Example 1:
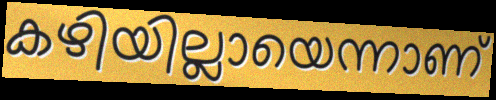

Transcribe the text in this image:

കഴിയില്ലായെന്നാണ്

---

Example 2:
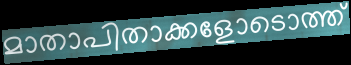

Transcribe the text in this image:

മാതാപിതാക്കളോടൊത്ത്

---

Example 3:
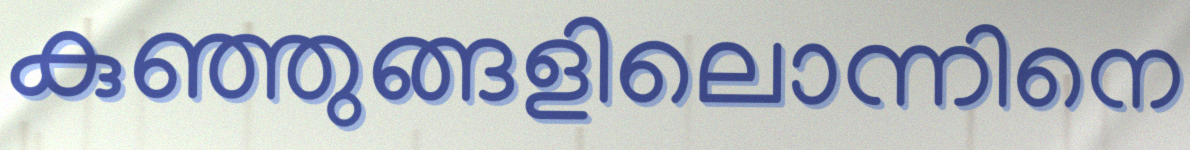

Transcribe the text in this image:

കുഞ്ഞുങ്ങളിലൊന്നിനെ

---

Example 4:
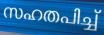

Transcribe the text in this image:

സഹതപിച്ച്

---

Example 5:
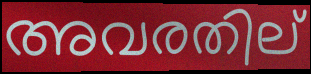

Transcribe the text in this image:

അവരതില്